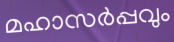
മഹാസർപ്പവും